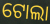
ଟୋଲା